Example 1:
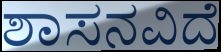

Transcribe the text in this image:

ಶಾಸನವಿದೆ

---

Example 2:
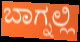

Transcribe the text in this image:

ಬಾಗ್ನಲ್ಲಿ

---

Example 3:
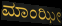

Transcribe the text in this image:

ಮಾಂಝೀ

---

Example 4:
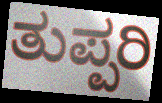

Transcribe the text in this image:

ತುಪ್ಪರಿ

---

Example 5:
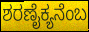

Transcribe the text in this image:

ಶರಣೈಕ್ಯನೆಂಬ